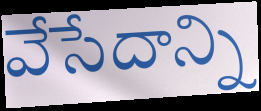
వేసేదాన్ని